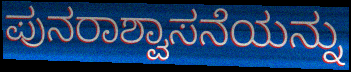
ಪುನರಾಶ್ವಾಸನೆಯನ್ನು